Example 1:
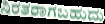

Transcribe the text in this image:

ನಿರತರಾಗಬಹುದು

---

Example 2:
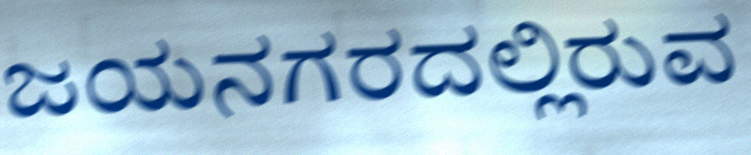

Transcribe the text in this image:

ಜಯನಗರದಲ್ಲಿರುವ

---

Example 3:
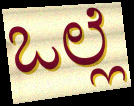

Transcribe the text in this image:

ಒಲ್ಲೆ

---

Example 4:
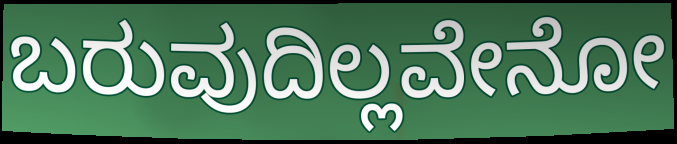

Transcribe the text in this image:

ಬರುವುದಿಲ್ಲವೇನೋ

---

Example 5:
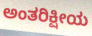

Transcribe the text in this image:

ಅಂತರಿಕ್ಷೀಯ